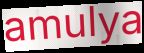
amulya